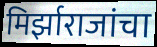
मिर्झाराजांचा